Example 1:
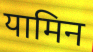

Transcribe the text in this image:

यामिन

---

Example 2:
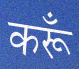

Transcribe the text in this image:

करूँ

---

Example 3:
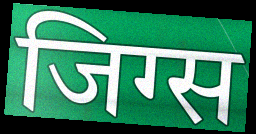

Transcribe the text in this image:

जिग्स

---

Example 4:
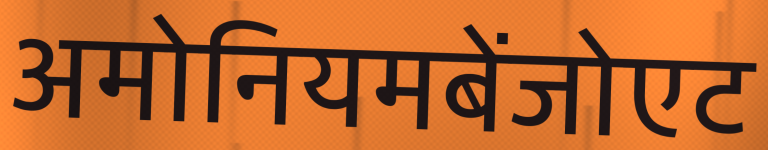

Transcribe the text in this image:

अमोनियमबेंजोएट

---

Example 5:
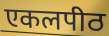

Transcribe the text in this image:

एकलपीठ